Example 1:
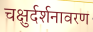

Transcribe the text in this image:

चक्षुर्दर्शनावरण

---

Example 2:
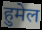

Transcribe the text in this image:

हुमेल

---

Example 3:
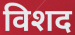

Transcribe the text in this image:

विशद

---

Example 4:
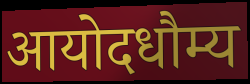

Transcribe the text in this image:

आयोदधौम्य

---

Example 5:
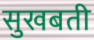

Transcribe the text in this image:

सुखबती